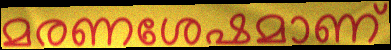
മരണശേഷമാണ്